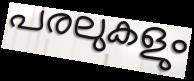
പരലുകളും